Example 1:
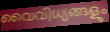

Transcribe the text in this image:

വൈവിധ്യങ്ങളും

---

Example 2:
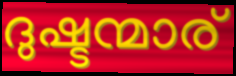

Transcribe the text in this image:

ദുഷ്ടന്മാര്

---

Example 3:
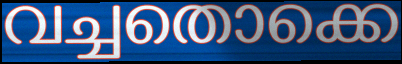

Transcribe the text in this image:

വച്ചതൊക്കെ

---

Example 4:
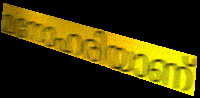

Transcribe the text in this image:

മനോഹരിയാണ്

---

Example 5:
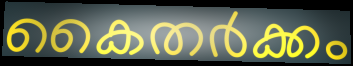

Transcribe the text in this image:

കൈതർക്കം